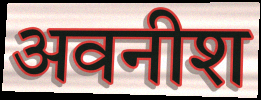
अवनीश